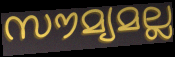
സൗമ്യമല്ല